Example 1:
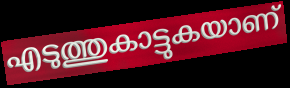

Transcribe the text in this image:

എടുത്തുകാട്ടുകയാണ്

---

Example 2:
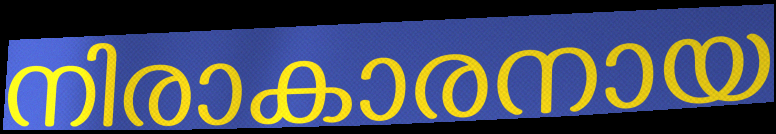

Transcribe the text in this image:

നിരാകാരനായ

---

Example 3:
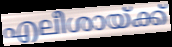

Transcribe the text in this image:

എലീശായ്ക്ക്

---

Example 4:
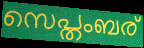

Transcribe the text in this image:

സെപ്തംബര്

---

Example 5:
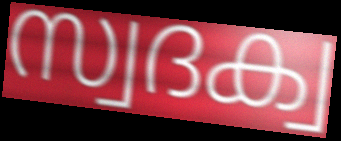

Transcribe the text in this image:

സ്വദക്വ